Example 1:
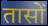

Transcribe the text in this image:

तासों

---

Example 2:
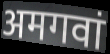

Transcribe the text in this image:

अमगवां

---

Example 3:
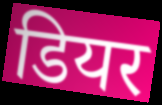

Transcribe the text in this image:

डियर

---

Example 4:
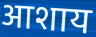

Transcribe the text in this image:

आशाय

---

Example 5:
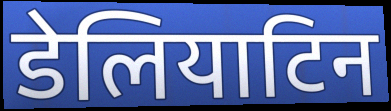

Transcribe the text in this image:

डेलियाटिन